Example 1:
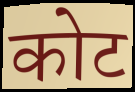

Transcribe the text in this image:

कोट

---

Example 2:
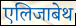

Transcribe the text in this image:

एलिजाबेथ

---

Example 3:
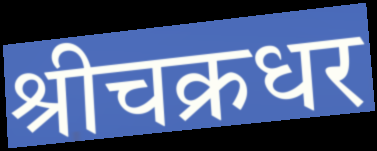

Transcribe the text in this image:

श्रीचक्रधर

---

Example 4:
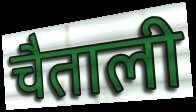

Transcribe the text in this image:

चैताली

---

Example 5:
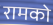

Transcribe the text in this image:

रामको